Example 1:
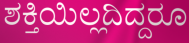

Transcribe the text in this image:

ಶಕ್ತಿಯಿಲ್ಲದಿದ್ದರೂ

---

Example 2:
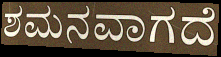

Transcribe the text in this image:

ಶಮನವಾಗದೆ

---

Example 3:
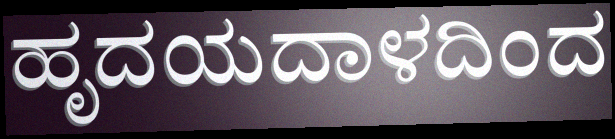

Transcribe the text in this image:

ಹೃದಯದಾಳದಿಂದ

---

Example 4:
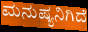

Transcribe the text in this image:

ಮನುಷ್ಯನಿಗಿದೆ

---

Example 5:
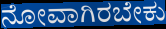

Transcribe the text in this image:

ನೋವಾಗಿರಬೇಕು